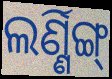
ଲର୍ଣ୍ଣିଙ୍ଗ୍